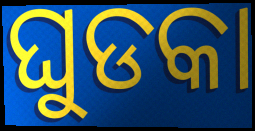
ଘୁଡକା